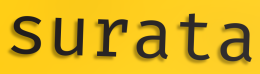
surata